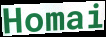
Homai